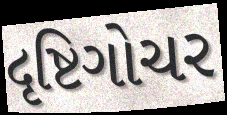
દૃષ્ટિગોચર